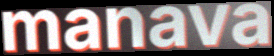
manava